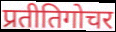
प्रतीतिगोचर